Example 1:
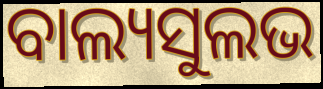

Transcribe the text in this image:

ବାଲ୍ୟସୁଲଭ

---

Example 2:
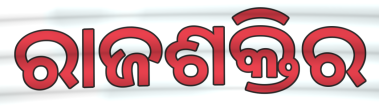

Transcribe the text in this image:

ରାଜଶକ୍ତିର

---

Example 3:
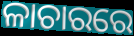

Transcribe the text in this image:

ଳାଚାରରେ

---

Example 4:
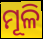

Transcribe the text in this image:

ମୂଳି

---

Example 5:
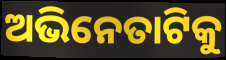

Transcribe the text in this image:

ଅଭିନେତାଟିକୁ